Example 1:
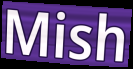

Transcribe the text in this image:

Mish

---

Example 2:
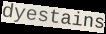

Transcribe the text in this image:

dyestains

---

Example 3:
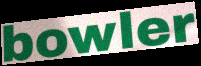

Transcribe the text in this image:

bowler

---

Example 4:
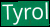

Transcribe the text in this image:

Tyrol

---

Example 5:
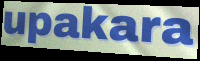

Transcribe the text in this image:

upakara